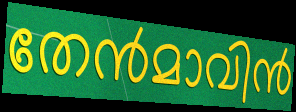
തേൻമാവിൻ